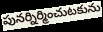
పునర్నిర్మించుటకును